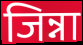
जिन्ना